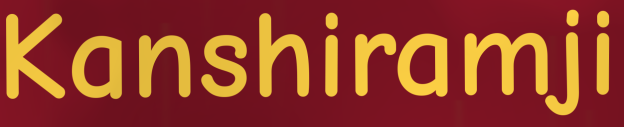
Kanshiramji